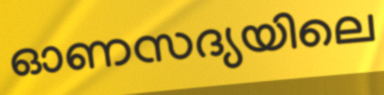
ഓണസദ്യയിലെ